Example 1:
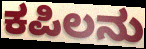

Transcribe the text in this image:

ಕಪಿಲನು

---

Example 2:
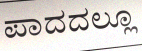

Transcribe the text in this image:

ಪಾದದಲ್ಲೂ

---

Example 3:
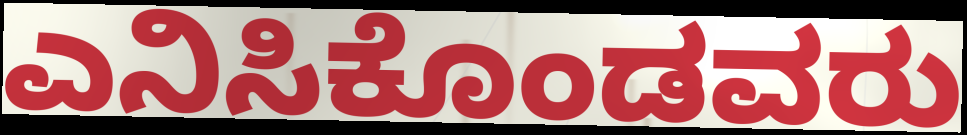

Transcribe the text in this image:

ಎನಿಸಿಕೊಂಡವರು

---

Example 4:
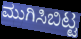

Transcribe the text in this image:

ಮುಗಿಸಿಬಿಟ್ಟ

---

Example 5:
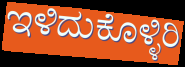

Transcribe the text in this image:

ಇಳಿದುಕೊಳ್ಳಿರಿ